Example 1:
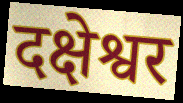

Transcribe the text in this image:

दक्षेश्वर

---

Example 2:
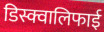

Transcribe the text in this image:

डिस्क्वालिफाई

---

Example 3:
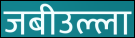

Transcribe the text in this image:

जबीउल्ला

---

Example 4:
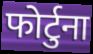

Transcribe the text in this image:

फोर्टुना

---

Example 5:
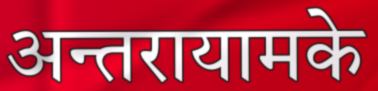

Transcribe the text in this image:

अन्तरायामके